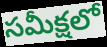
సమీక్షలో